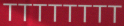
TTTTTTTT